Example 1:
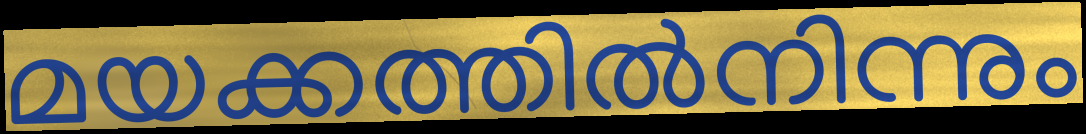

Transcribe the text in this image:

മയക്കത്തിൽനിന്നും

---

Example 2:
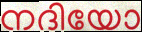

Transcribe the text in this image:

നദിയോ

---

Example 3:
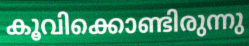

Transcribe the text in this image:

കൂവിക്കൊണ്ടിരുന്നു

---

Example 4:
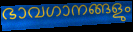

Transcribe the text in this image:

ഭാവഗാനങ്ങളും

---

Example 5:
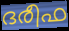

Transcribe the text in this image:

ദരീഫ